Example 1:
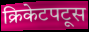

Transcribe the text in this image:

क्रिकेटपटूस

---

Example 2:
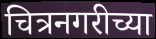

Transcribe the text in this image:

चित्रनगरीच्या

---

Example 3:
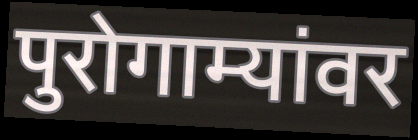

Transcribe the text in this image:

पुरोगाम्यांवर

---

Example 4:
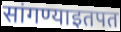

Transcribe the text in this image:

सांगण्याइतपत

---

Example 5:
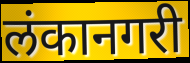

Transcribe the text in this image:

लंकानगरी